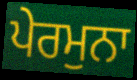
ਪੇਰਮੁਨਾ